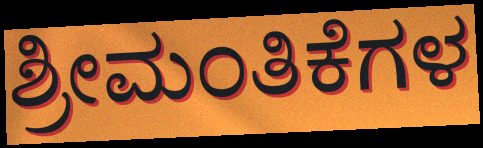
ಶ್ರೀಮಂತಿಕೆಗಳ